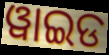
ୱାଇଡ